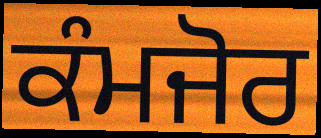
ਕੰਮਜੋਰ